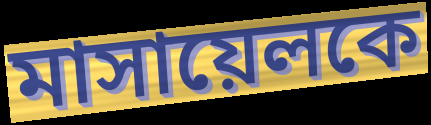
মাসায়েলকে